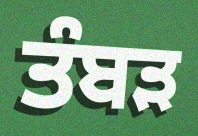
ਤੰਬੜ